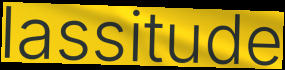
lassitude